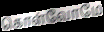
கொள்வோமே